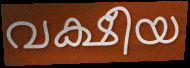
വക്ഷീയ